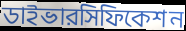
ডাইভারসিফিকেশন